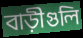
বাড়ীগুলি